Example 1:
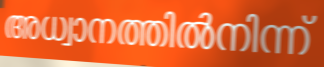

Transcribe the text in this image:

അധ്വാനത്തിൽനിന്ന്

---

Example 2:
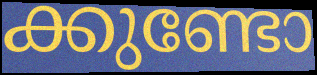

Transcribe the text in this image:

ക്കുണ്ടോ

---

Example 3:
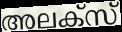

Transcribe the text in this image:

അലക്സ്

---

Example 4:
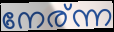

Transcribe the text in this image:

നേര്ന്ന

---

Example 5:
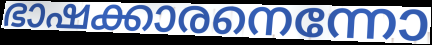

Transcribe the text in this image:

ഭാഷക്കാരനെന്നോ